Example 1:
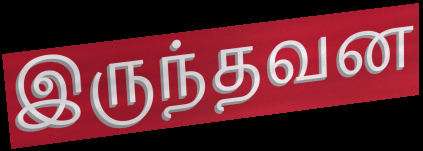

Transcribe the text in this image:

இருந்தவன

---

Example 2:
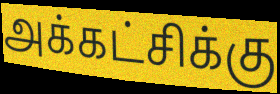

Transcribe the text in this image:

அக்கட்சிக்கு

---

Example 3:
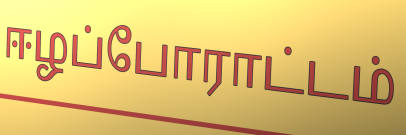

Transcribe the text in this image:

ஈழப்போராட்டம்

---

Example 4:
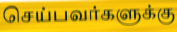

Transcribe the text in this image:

செய்பவர்களுக்கு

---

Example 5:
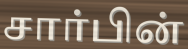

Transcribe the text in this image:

சார்பின்